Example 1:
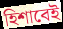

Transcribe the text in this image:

হিশাবেই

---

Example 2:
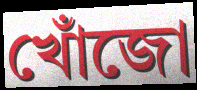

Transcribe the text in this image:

খোঁজো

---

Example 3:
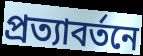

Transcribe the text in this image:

প্রত্যাবর্তনে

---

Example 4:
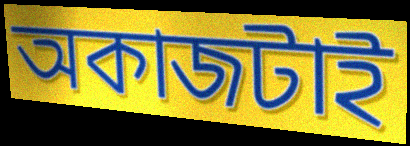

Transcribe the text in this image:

অকাজটাই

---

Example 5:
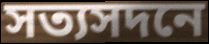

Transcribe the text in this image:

সত্যসদনে